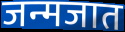
जन्मजात